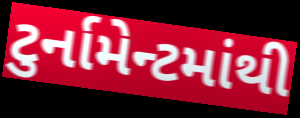
ટુર્નામેન્ટમાંથી